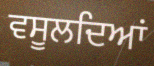
ਵਸੂਲਦਿਆਂ